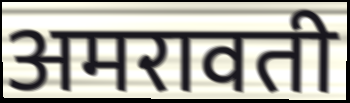
अमरावती